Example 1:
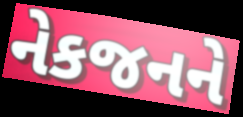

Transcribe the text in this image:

નેકજનને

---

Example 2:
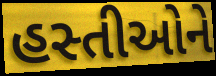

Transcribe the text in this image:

હસ્તીઓને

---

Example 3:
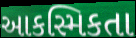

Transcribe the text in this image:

આકસ્મિકતા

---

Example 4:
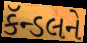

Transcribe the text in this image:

કૅન્ડલને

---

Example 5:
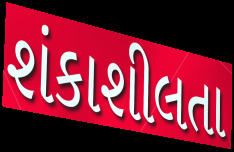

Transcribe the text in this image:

શંકાશીલતા